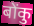
बोंकु